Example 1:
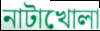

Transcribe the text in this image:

নাটাখোলা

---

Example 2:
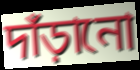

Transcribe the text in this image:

দাঁড়ানো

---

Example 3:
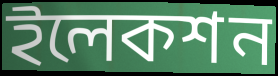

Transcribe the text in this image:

ইলেকশন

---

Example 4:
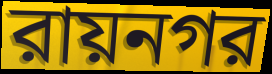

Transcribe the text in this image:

রায়নগর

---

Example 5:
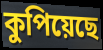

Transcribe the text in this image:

কুপিয়েছে